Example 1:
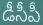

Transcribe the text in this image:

డీసీపీ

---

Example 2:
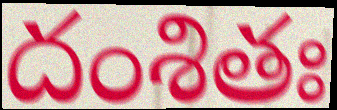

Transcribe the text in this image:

దంశితః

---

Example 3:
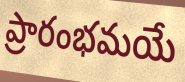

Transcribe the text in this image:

ప్రారంభమయే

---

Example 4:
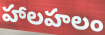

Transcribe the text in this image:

హాలహలం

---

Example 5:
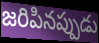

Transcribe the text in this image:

జరిపినప్పుడు